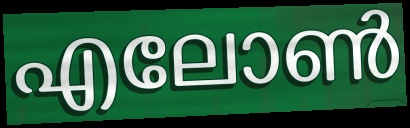
എലോൺ